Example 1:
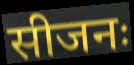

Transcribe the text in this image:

सीजनः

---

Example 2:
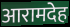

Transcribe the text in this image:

आरामदेह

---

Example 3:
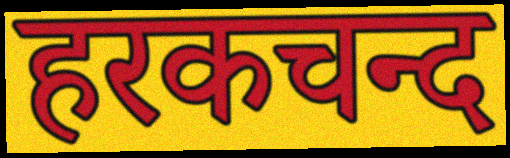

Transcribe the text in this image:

हरकचन्द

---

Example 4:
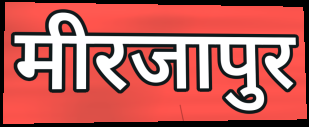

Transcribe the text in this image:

मीरजापुर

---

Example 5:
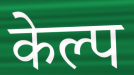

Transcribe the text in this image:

केल्प